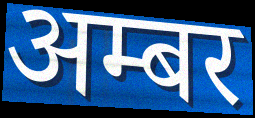
अम्बर